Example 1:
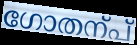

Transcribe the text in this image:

ഗോതന്പ്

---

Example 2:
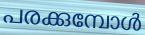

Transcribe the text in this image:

പരക്കുമ്പോൾ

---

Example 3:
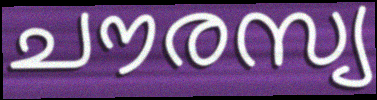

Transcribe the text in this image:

ചൗരസ്യ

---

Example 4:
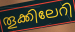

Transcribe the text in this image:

തൂക്കിലേറി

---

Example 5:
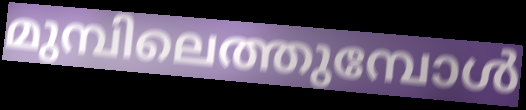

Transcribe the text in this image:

മുമ്പിലെത്തുമ്പോൾ